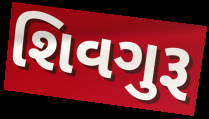
શિવગુરૂ